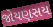
જોયણસય